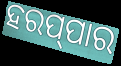
ହରପ୍‌ପାର